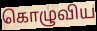
கொழுவிய